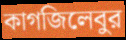
কাগজিলেবুর